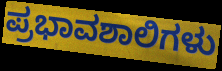
ಪ್ರಭಾವಶಾಲಿಗಳು